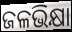
ଜଳଭିକ୍ଷା